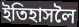
ইতিহাসলৈ